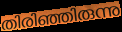
തിരിഞ്ഞിരുന്നു